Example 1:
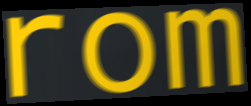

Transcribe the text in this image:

rom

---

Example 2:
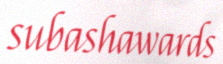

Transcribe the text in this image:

subashawards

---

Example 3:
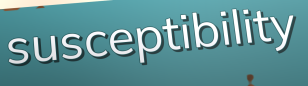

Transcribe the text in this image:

susceptibility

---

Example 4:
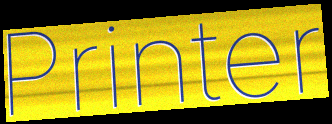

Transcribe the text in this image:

Printer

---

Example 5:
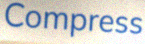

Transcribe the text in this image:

Compress